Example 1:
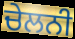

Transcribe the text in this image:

ਚੇਲਨੀ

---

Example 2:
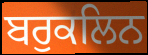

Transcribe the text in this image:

ਬਰੁਕਲਿਨ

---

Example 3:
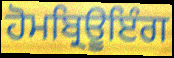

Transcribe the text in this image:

ਹੋਮਬ੍ਰਿਊਇੰਗ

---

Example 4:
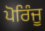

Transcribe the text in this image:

ਪੋਰਿੰਜੂ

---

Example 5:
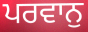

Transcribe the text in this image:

ਪਰਵਾਨੁ